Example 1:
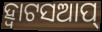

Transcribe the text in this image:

ହ୍ବାଟସଆପ୍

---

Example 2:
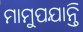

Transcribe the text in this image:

ମାମୁପଯାନ୍ତି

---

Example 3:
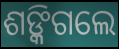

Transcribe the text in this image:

ଶଙ୍କିଗଲେ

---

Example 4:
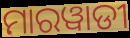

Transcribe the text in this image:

ମାରୱାଡୀ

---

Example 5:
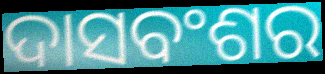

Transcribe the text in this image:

ଦାସବଂଶର